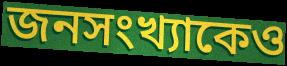
জনসংখ্যাকেও